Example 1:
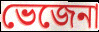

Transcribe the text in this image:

ভেজেনা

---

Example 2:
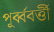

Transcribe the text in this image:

পূর্ব্ববর্ত্তী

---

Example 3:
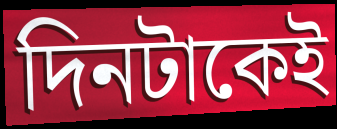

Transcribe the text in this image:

দিনটাকেই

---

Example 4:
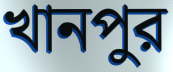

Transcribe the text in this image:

খানপুর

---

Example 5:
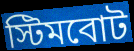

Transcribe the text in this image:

স্টিমবোট